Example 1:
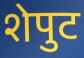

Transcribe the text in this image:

शेपुट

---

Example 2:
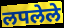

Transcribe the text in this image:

लपलेले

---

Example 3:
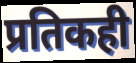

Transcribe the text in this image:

प्रतिकही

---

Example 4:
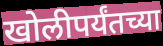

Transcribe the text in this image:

खोलीपर्यंतच्या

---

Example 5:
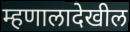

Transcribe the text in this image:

म्हणालादेखील